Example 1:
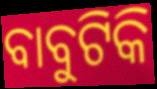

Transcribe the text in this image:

ବାବୁଟିକି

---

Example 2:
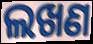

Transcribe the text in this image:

ଲଖଣ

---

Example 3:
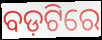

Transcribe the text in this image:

ବଡ଼ଟିରେ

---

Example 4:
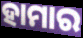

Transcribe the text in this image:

ହାମାର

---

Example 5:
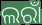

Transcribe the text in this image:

ଲରାଁ